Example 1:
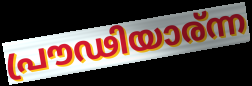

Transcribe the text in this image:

പ്രൗഢിയാര്ന്ന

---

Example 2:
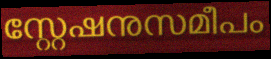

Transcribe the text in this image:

സ്റ്റേഷനുസമീപം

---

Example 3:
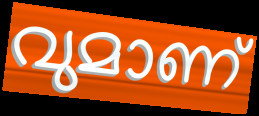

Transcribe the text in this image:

വുമാണ്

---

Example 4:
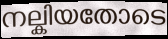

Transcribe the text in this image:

നല്കിയതോടെ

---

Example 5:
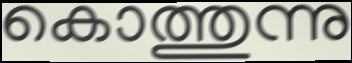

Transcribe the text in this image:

കൊത്തുന്നു